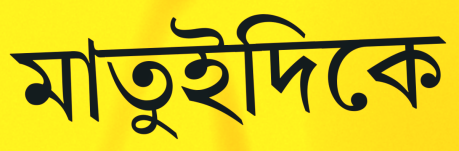
মাতুইদিকে